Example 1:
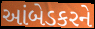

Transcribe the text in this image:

આંબેડકરને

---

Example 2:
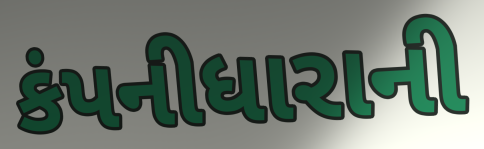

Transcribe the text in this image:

કંપનીધારાની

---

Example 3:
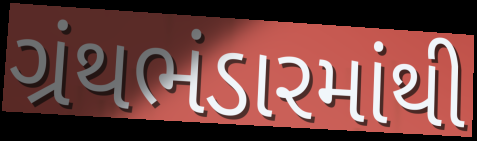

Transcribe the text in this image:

ગ્રંથભંડારમાંથી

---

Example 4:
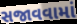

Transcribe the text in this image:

સજાવવામાં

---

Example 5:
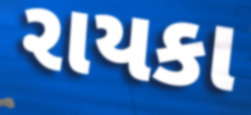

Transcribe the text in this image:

રાયકા